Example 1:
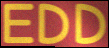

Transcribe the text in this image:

EDD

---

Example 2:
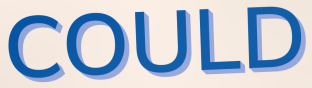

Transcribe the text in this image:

COULD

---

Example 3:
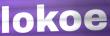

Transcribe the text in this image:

lokoe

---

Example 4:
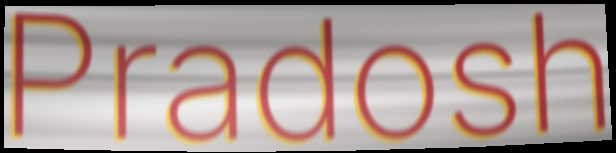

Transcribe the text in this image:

Pradosh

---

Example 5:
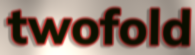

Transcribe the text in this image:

twofold